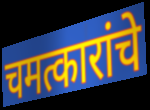
चमत्कारांचे